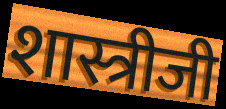
शास्त्रीजी